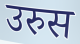
उरुस